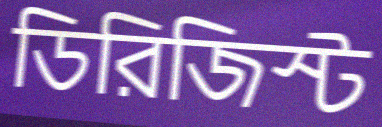
ডিরিজিস্ট